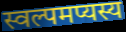
स्वल्पमप्यस्य